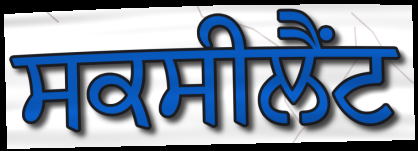
ਸਕਸੀਲੈਂਟ